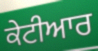
ਕੇਟੀਆਰ